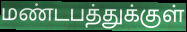
மண்டபத்துக்குள்